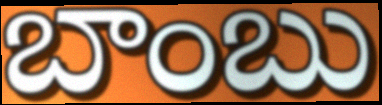
బాంబు